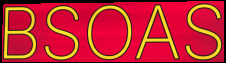
BSOAS